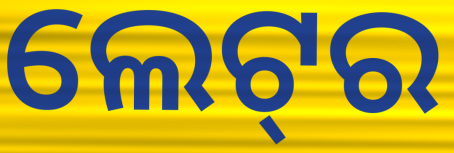
ଲେଟ୍‌ର